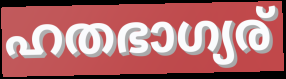
ഹതഭാഗ്യര്